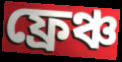
ফ্রেঞ্চ